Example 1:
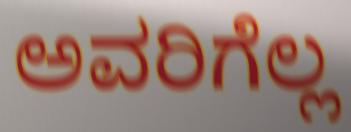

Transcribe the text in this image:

ಅವರಿಗೆಲ್ಲ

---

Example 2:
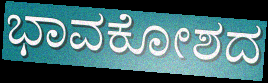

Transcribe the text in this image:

ಭಾವಕೋಶದ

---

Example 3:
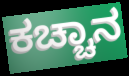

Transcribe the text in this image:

ಕಚ್ಚಾನ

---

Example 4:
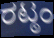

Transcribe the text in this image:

ರಟ್ಠಂ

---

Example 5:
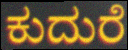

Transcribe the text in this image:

ಕುದುರೆ